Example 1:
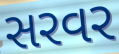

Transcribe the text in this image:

સરવર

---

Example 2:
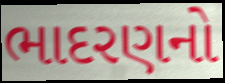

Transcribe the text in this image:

ભાદરણનો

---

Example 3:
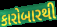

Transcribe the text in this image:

કારોબારથી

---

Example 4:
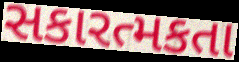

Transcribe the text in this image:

સકારત્મકતા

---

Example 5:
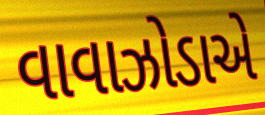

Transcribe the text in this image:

વાવાઝોડાએ